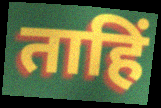
ताहिं